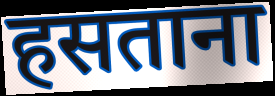
हसताना